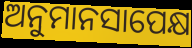
ଅନୁମାନସାପେକ୍ଷ